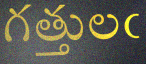
గత్తులఁ